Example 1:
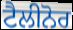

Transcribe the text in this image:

ਟੈਲੀਨੋਰ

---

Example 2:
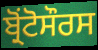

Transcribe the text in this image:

ਬ੍ਰੋਂਟੋਸੌਰਸ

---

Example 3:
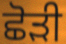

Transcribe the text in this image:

ਛੋੜੀ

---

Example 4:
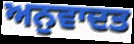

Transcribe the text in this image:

ਅਨੁਵਾਦਤ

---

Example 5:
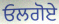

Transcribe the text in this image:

ਓਲਗੋਏ